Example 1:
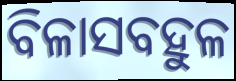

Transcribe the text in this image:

ବିଳାସବହୁଳ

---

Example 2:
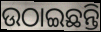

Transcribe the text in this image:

ଉଠାଇଛନ୍ତି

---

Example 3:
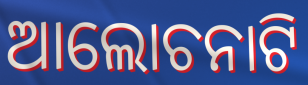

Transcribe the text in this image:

ଆଲୋଚନାଟି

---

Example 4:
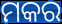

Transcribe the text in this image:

ମକର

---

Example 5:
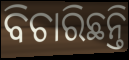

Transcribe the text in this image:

ବିଚାରିଛନ୍ତି